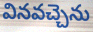
వినవచ్చెను